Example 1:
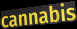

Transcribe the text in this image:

cannabis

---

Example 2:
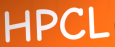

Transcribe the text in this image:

HPCL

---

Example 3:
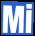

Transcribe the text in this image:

Mi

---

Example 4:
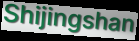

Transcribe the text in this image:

Shijingshan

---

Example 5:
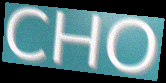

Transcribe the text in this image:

CHO